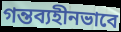
গন্তব্যহীনভাবে